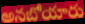
అనబోయారు